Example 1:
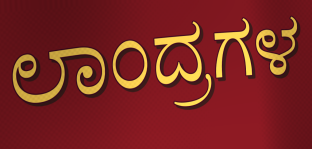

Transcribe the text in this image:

ಲಾಂದ್ರಗಳ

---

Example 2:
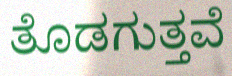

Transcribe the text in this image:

ತೊಡಗುತ್ತವೆ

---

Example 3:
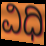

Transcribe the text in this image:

ವಿಧಿ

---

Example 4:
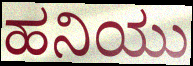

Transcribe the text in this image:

ಹನಿಯು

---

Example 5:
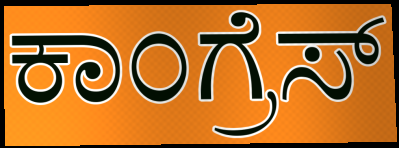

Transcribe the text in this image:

ಕಾಂಗ್ರೆಸ್